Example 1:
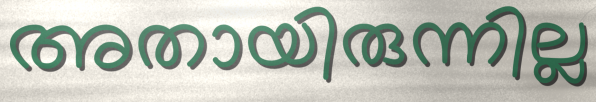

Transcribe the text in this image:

അതായിരുന്നില്ല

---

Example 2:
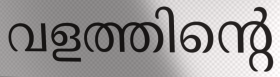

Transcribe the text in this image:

വളത്തിന്റെ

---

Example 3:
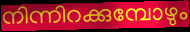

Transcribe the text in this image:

നിന്നിറക്കുമ്പോഴും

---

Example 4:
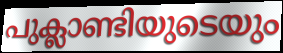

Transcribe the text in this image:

പുക്ലാണ്ടിയുടെയും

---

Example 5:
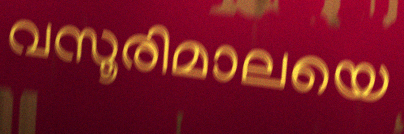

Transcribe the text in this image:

വസൂരിമാലയെ